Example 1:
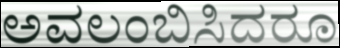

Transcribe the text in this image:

ಅವಲಂಬಿಸಿದರೂ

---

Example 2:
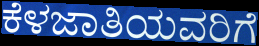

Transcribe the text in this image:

ಕೆಳಜಾತಿಯವರಿಗೆ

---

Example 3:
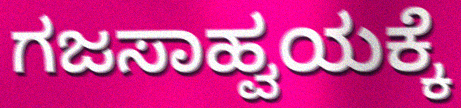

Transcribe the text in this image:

ಗಜಸಾಹ್ವಯಕ್ಕೆ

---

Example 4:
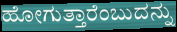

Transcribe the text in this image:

ಹೋಗುತ್ತಾರೆಂಬುದನ್ನು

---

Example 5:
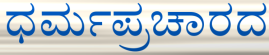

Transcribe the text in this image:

ಧರ್ಮಪ್ರಚಾರದ